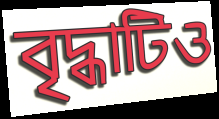
বৃদ্ধাটিও